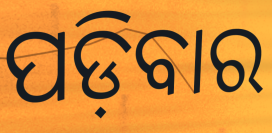
ପଡ଼ିବାର